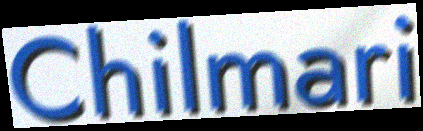
Chilmari